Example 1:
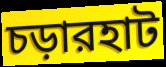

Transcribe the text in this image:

চড়ারহাট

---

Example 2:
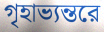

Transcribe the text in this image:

গৃহাভ্যন্তরে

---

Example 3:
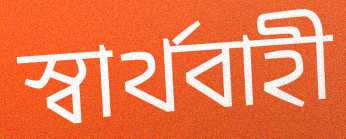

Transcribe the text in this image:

স্বার্থবাহী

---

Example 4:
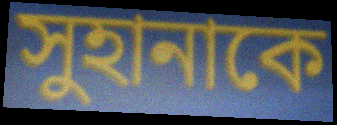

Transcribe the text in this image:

সুহানাকে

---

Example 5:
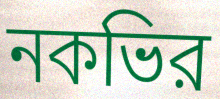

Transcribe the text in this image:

নকভির